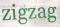
zigzag